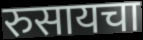
रुसायचा